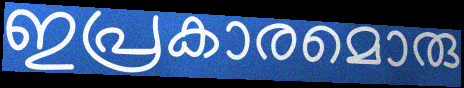
ഇപ്രകാരമൊരു